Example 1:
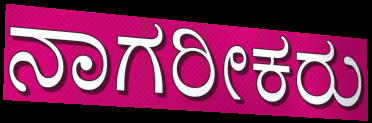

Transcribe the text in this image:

ನಾಗರೀಕರು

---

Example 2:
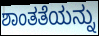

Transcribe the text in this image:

ಶಾಂತತೆಯನ್ನು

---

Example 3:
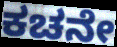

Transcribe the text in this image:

ಕಚನೇ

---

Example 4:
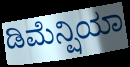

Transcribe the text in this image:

ಡಿಮೆನ್ಷಿಯಾ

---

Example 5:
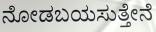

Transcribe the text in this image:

ನೋಡಬಯಸುತ್ತೇನೆ